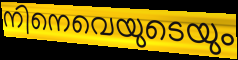
നിനെവെയുടെയും